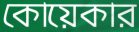
কোয়েকার